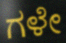
ಗಳೇ